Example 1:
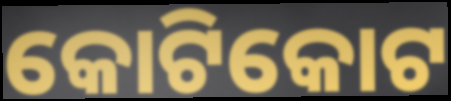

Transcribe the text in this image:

କୋଟିକୋଟ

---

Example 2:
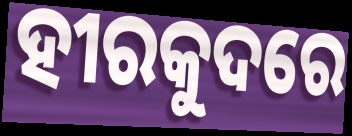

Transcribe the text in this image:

ହୀରକୁଦରେ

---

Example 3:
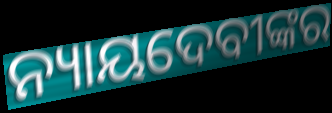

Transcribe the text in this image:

ନ୍ୟାୟଦେବୀଙ୍କର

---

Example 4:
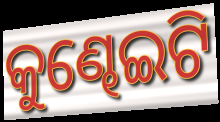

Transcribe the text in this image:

କୁଣ୍ଢେଇଟି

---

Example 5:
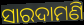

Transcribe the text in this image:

ସାରଦାମଣି